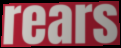
rears